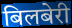
बिलबेरी